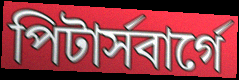
পিটার্সবার্গে